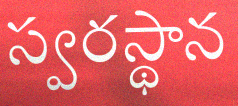
స్వరస్థాన